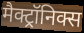
मैक्ट्रॉनिक्स